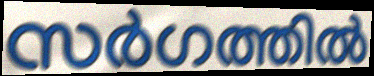
സർഗത്തിൽ